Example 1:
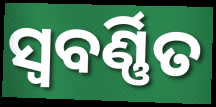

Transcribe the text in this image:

ସ୍ୱବର୍ଣ୍ଣିତ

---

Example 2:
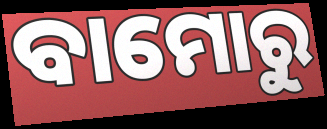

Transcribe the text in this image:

ବାମୋରୁ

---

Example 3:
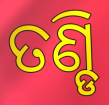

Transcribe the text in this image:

ତଣ୍ଡି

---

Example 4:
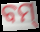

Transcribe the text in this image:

ବମ୍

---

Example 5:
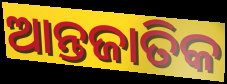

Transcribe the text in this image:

ଆନ୍ତଜାତିକ